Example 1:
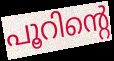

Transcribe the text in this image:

പൂറിന്റെ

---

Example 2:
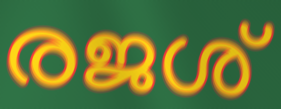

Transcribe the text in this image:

രജശ്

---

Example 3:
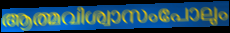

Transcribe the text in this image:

ആത്മവിശ്വാസംപോലും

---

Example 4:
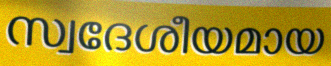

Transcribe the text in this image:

സ്വദേശീയമായ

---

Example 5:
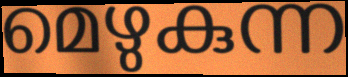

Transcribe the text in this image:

മെഴുകുന്ന